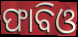
ଫାବିଓ